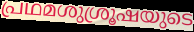
പ്രഥമശുശ്രൂഷയുടെ